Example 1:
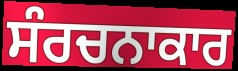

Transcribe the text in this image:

ਸੰਰਚਨਾਕਾਰ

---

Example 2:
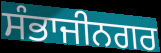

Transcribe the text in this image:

ਸੰਭਾਜੀਨਗਰ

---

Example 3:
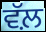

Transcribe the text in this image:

ਵੱਲ਼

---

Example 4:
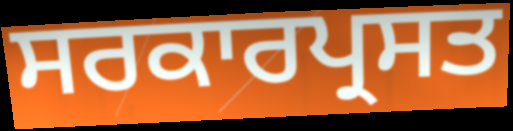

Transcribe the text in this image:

ਸਰਕਾਰਪ੍ਰਸਤ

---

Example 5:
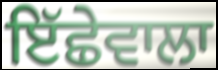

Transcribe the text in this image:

ਇੱਛੇਵਾਲਾ